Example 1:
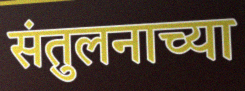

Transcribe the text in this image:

संतुलनाच्या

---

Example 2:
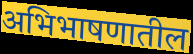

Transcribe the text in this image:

अभिभाषणातील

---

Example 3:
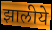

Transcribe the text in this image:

झालीये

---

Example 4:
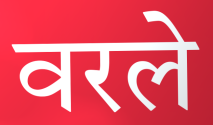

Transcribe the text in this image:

वरले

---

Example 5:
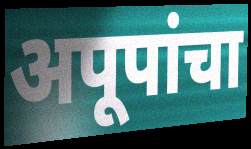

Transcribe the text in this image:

अपूपांचा